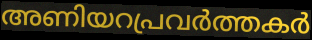
അണിയറപ്രവർത്തകർ